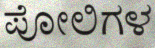
ಪೋಲಿಗಳ